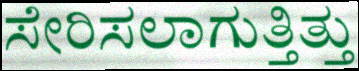
ಸೇರಿಸಲಾಗುತ್ತಿತ್ತು